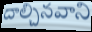
దాల్చినవాని